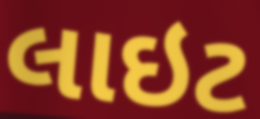
લાઇટ